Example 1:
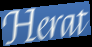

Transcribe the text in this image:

Herat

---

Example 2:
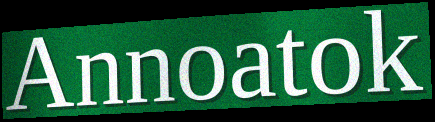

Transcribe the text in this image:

Annoatok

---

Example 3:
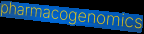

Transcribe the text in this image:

pharmacogenomics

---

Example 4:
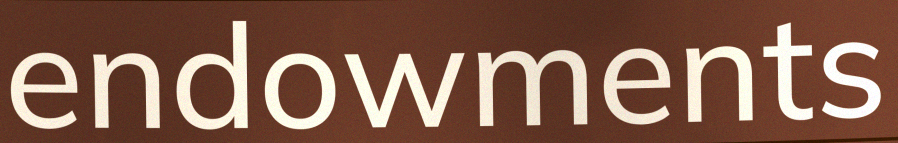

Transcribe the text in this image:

endowments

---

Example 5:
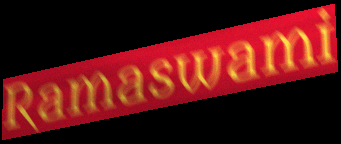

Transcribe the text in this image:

Ramaswami